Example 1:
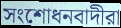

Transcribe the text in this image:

সংশোধনবাদীরা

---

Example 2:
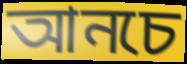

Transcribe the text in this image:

আনচে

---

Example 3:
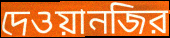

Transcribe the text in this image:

দেওয়ানজির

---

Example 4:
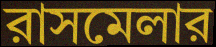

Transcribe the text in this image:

রাসমেলার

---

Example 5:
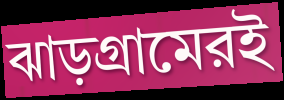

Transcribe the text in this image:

ঝাড়গ্রামেরই